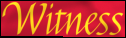
Witness